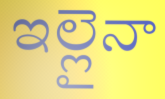
ఇల్లైనా